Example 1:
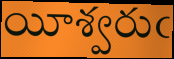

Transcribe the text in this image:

యీశ్వరుఁ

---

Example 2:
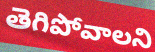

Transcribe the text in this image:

తెగిపోవాలని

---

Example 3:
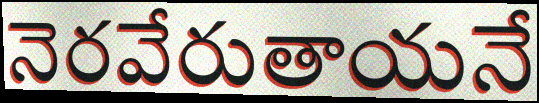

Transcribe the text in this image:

నెరవేరుతాయనే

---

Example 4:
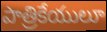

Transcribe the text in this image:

పాత్రికేయులూ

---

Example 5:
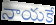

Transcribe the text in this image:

నాయకే